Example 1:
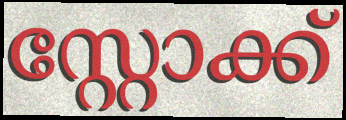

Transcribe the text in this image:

സ്റ്റോക്ക്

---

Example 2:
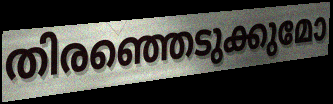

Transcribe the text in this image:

തിരഞ്ഞെടുക്കുമോ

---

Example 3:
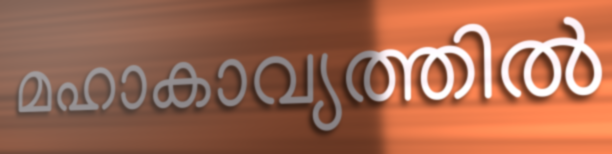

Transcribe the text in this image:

മഹാകാവ്യത്തിൽ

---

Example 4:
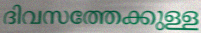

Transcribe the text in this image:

ദിവസത്തേക്കുള്ള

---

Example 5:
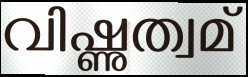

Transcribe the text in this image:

വിഷ്ണുത്വമ്